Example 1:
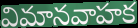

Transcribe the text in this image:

విమానవాహక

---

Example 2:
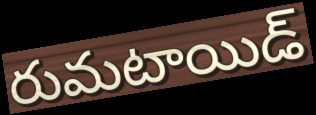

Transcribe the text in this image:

రుమటాయిడ్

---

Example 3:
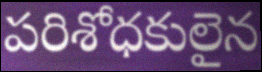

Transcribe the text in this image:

పరిశోధకులైన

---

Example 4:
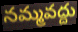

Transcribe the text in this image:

నమ్మవద్దు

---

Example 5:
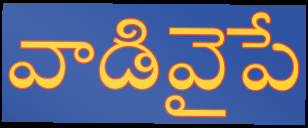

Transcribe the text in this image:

వాడివైపే